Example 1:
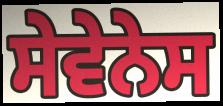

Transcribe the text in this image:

ਸੇਵੇਨੇਸ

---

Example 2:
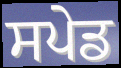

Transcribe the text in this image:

ਸਪੇਡ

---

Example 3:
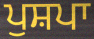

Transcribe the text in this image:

ਪੁਸ਼ਪਾ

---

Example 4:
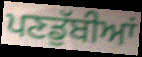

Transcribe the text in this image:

ਪਣਡੁੱਬੀਆਂ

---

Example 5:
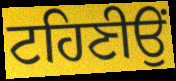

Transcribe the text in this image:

ਟਹਿਣੀਉਂ